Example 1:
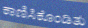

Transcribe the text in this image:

ಕಾಣಿಸಿಕೊಂಡಿತು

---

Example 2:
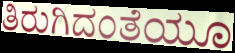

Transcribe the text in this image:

ತಿರುಗಿದಂತೆಯೂ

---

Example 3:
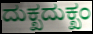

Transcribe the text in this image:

ದುಕ್ಖದುಕ್ಖಂ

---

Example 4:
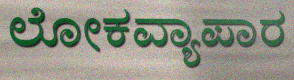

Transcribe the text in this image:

ಲೋಕವ್ಯಾಪಾರ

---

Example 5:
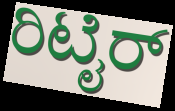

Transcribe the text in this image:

ರಿಟೈರ್